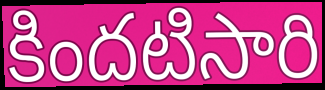
కిందటిసారి